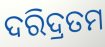
ଦରିଦ୍ରତମ